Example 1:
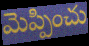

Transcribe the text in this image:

మెప్పించు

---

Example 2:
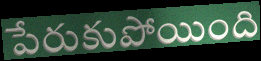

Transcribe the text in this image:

పేరుకుపోయింది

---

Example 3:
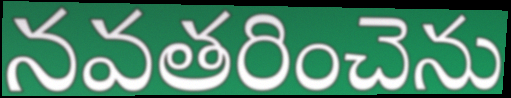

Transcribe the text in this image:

నవతరించెను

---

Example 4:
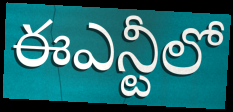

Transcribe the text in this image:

ఈఎన్టీలో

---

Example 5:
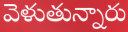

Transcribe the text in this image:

వెళుతున్నారు